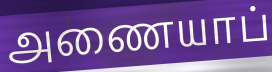
அணையாப்